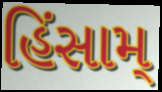
હિંસામ્